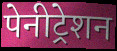
पेनीट्रेशन